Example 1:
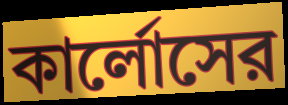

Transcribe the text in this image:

কার্লোসের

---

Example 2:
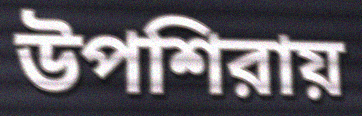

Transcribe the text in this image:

উপশিরায়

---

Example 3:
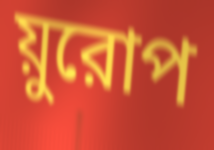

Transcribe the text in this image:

য়ুরোপ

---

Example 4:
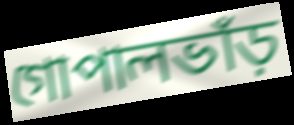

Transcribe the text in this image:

গোপালভাঁড়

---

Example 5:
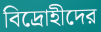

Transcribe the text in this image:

বিদ্রোহীদের